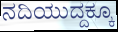
ನದಿಯುದ್ದಕ್ಕೂ